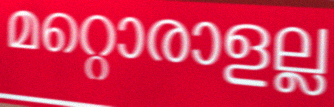
മറ്റൊരാളല്ല